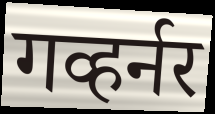
गव्हर्नर